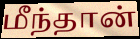
மீந்தான்